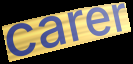
carer